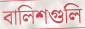
বালিশগুলি